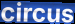
circus